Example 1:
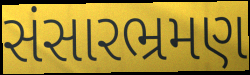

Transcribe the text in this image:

સંસારભ્રમણ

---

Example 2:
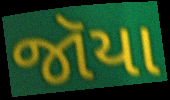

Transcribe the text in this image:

જૉયા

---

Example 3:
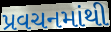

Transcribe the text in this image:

પ્રવચનમાંથી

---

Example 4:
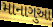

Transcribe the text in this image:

માનાગુઆ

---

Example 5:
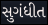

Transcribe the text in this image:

સુગંધીત